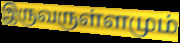
இருவருள்ளமும்